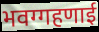
भवग्गहणाई